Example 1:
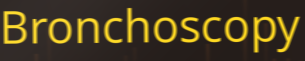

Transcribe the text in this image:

Bronchoscopy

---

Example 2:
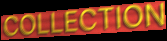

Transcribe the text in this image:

COLLECTION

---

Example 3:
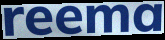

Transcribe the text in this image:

reema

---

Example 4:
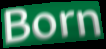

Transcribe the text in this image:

Born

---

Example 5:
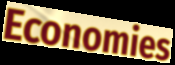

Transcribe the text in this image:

Economies